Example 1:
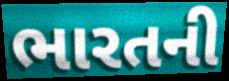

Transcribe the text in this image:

ભારતની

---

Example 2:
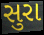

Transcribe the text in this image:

સુરા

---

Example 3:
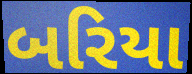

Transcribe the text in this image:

બરિયા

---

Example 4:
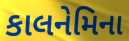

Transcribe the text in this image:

કાલનેમિના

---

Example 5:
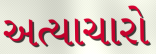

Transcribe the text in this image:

અત્યાચારો